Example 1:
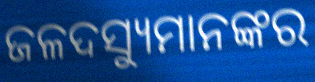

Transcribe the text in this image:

ଜଳଦସ୍ୟୁମାନଙ୍କର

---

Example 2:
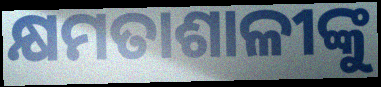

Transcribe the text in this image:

କ୍ଷମତାଶାଳୀଙ୍କୁ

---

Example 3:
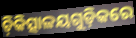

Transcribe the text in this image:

ଚ଼ିକିତ୍ସାଳୟଗୁଡ଼ିକରେ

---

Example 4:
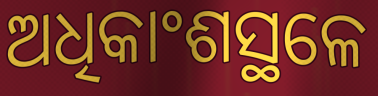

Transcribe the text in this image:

ଅଧିକାଂଶସ୍ଥଳେ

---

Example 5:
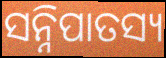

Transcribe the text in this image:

ସନ୍ନିପାତସ୍ୟ